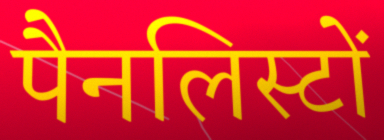
पैनलिस्टों